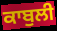
ਕਾਬੁਲੀ